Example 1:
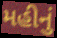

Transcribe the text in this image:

મહીનું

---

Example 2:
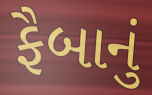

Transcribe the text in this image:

ફૈબાનું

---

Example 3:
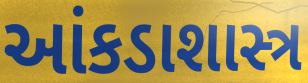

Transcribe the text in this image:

આંકડાશાસ્ત્ર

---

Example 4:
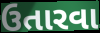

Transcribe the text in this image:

ઉતારવા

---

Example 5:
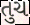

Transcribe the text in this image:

તુચ